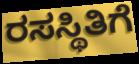
ರಸಸ್ಥಿತಿಗೆ